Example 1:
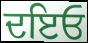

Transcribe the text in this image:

ਦਇਓ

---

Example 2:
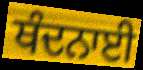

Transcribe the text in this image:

ਥੰਦਨਾਈ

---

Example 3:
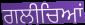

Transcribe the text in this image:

ਗਲੀਚਿਆਂ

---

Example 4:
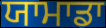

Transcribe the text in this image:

ਯਾਮਾਡਾ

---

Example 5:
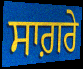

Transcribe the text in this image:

ਸਾਗ਼ਰੇ